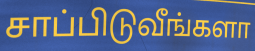
சாப்பிடுவீங்களா